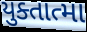
યુક્તાત્મા